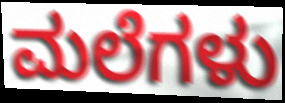
ಮಲೆಗಳು